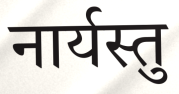
नार्यस्तु